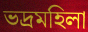
ভদ্রমহিলা